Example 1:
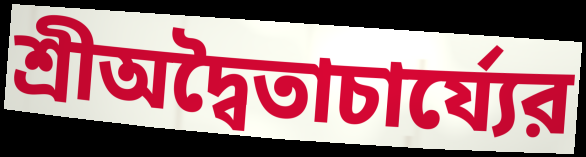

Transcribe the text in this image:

শ্রীঅদ্বৈতাচার্য্যের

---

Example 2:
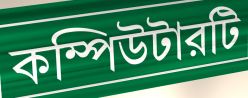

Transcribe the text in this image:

কম্পিউটারটি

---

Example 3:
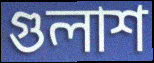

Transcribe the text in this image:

গুলাশ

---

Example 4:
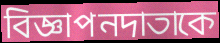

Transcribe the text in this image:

বিজ্ঞাপনদাতাকে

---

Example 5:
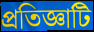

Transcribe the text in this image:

প্রতিজ্ঞাটি